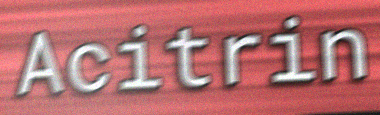
Acitrin